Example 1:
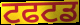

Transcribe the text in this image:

ਟਫਟਡ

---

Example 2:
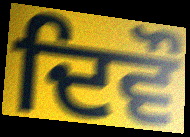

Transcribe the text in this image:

ਦਿਵੌ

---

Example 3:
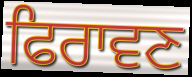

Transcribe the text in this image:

ਫਿਰਾਵਣ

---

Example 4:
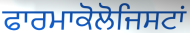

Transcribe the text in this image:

ਫਾਰਮਾਕੋਲੋਜਿਸਟਾਂ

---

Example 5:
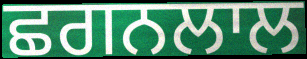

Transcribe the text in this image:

ਛਗਨਲਾਲ